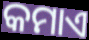
କମାଏ